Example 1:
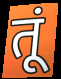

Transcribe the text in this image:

तूं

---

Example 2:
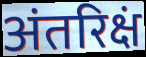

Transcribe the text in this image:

अंतरिक्षं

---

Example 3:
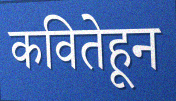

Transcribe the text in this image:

कवितेहून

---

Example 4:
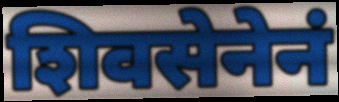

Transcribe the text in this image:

शिवसेनेनं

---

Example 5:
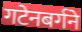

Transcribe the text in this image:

गटेनबर्गने